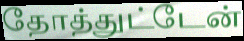
தோத்துட்டேன்